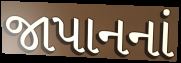
જાપાનનાં